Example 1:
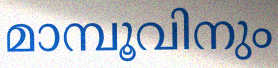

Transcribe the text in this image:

മാമ്പൂവിനും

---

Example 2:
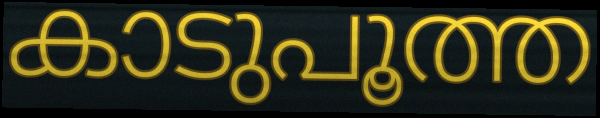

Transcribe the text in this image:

കാടുപൂത്ത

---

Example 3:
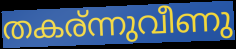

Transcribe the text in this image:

തകര്ന്നുവീണു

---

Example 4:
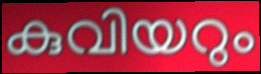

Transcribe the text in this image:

കുവിയറും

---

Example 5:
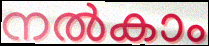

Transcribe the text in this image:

നൽകാം